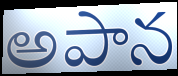
అపాన